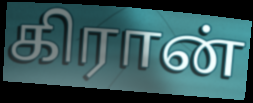
கிரான்